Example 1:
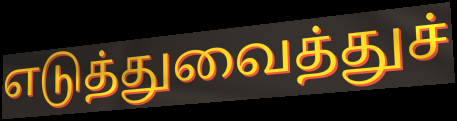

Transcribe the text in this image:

எடுத்துவைத்துச்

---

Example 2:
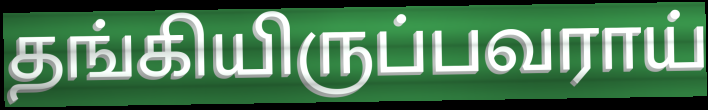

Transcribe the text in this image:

தங்கியிருப்பவராய்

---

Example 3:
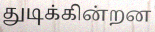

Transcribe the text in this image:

துடிக்கின்றன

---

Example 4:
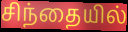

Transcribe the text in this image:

சிந்தையில்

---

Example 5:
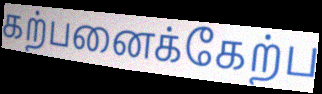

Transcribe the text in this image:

கற்பனைக்கேற்ப